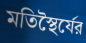
মতিস্থৈর্যের